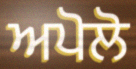
ਅਪੋਲੋ